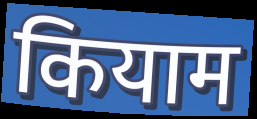
कियाम